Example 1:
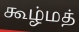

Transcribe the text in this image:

கூழ்மத்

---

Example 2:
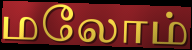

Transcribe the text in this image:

மலோம்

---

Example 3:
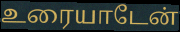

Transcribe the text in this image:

உரையாடேன்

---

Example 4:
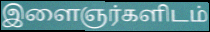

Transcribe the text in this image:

இளைஞர்களிடம்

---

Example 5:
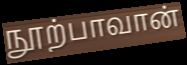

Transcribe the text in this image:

நூற்பாவான்